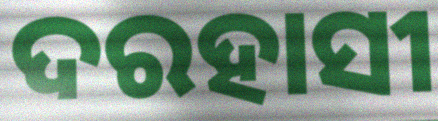
ଦରହାସୀ